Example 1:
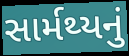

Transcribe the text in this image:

સાર્મથ્યનું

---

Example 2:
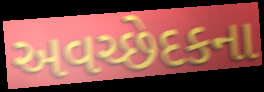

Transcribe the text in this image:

અવચ્છેદકના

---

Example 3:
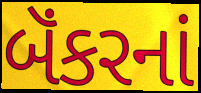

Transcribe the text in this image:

બૅંકરનાં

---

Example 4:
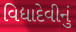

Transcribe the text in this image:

વિદ્યાદેવીનું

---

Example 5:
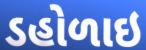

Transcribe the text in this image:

ડહોળાઇ